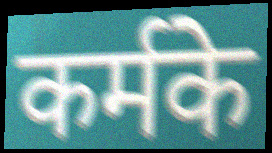
कर्मके